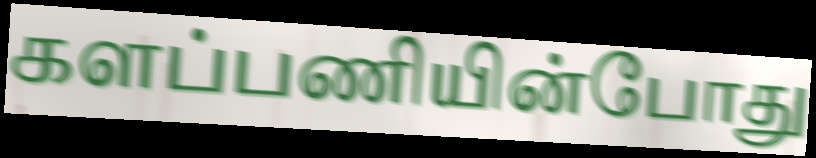
களப்பணியின்போது